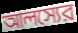
আলস্যের